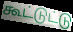
கூட்டுட்டு